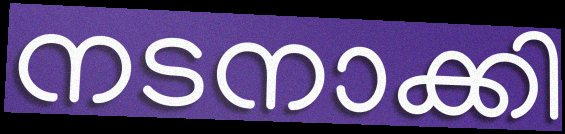
നടനാക്കി